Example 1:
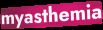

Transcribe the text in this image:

myasthemia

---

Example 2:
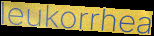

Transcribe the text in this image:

leukorrhea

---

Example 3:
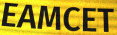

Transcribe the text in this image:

EAMCET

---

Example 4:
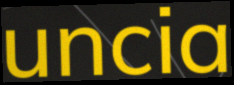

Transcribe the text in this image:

uncia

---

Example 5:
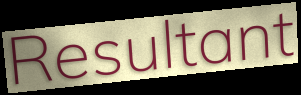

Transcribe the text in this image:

Resultant